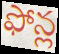
ఫోన్ల